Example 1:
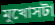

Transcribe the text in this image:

মুখোসটা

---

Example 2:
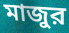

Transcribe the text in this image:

মাজুর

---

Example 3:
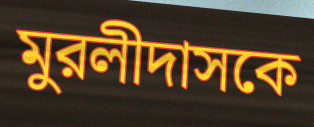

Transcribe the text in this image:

মুরলীদাসকে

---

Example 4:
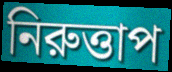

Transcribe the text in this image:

নিরুত্তাপ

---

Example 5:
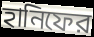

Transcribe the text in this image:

হানিফের